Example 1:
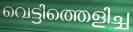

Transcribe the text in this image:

വെട്ടിത്തെളിച്ച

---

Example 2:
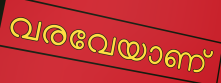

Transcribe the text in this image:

വരവേയാണ്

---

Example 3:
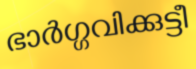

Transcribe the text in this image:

ഭാർഗ്ഗവിക്കുട്ടീ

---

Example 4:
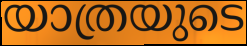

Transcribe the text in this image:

യാത്രയുടെ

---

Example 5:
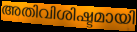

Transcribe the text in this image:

അതിവിശിഷ്ടമായി